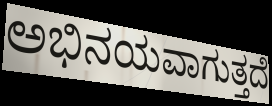
ಅಭಿನಯವಾಗುತ್ತದೆ